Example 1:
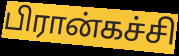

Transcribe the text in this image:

பிரான்கச்சி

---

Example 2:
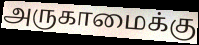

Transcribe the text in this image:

அருகாமைக்கு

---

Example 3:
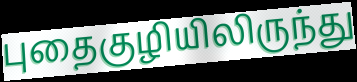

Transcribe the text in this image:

புதைகுழியிலிருந்து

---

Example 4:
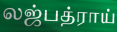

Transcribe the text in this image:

லஜ்பத்ராய்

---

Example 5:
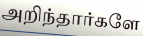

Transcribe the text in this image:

அறிந்தார்களே